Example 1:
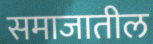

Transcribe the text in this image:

समाजातील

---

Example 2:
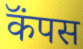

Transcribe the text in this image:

कॅंपस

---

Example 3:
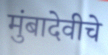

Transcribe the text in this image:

मुंबादेवीचे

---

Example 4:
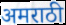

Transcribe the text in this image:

अमराठी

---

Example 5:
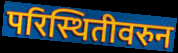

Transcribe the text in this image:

परिस्थितीवरुन